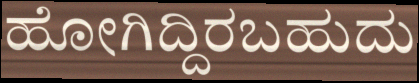
ಹೋಗಿದ್ದಿರಬಹುದು